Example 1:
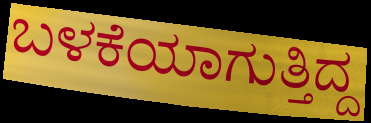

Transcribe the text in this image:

ಬಳಕೆಯಾಗುತ್ತಿದ್ದ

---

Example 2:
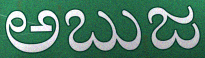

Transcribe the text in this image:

ಅಬುಜ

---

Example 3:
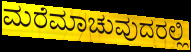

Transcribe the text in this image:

ಮರೆಮಾಚುವುದರಲ್ಲಿ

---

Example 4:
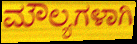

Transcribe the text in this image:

ಮೌಲ್ಯಗಳಾಗಿ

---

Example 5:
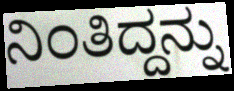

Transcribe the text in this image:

ನಿಂತಿದ್ದನ್ನು